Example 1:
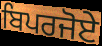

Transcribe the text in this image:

ਬਿਪਰਜੋਏ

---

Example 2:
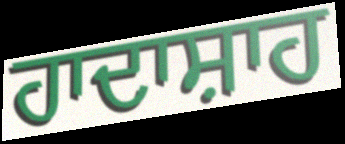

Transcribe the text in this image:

ਹਾਦਾਸ਼ਾਹ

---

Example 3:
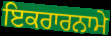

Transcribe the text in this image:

ਇਕਰਾਰਨਾਮੇ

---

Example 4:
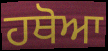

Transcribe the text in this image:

ਹਥੋਆ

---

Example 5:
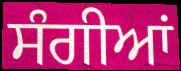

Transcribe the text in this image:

ਸੰਗੀਆਂ